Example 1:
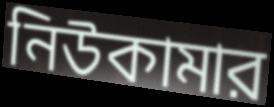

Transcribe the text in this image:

নিউকামার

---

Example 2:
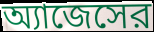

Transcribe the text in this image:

অ্যাজেসের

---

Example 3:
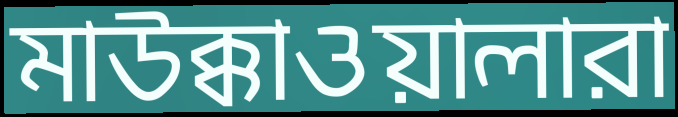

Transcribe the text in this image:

মাউক্কাওয়ালারা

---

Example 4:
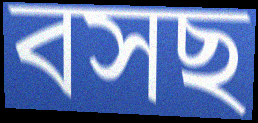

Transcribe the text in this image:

বসছ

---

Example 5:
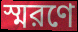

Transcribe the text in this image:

স্মরণে